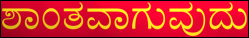
ಶಾಂತವಾಗುವುದು